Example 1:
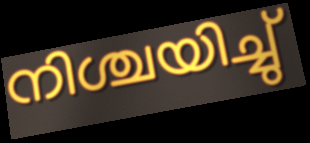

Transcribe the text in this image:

നിശ്ചയിച്ചു്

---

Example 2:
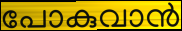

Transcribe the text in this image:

പോകുവാൻ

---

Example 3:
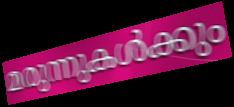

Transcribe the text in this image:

മരുന്നുകൾക്കും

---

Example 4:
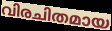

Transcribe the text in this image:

വിരചിതമായ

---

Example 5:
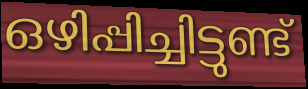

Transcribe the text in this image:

ഒഴിപ്പിച്ചിട്ടുണ്ട്